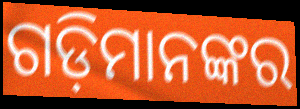
ଗଡ଼ିମାନଙ୍କର